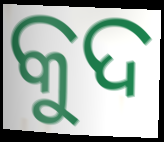
କୁଦ